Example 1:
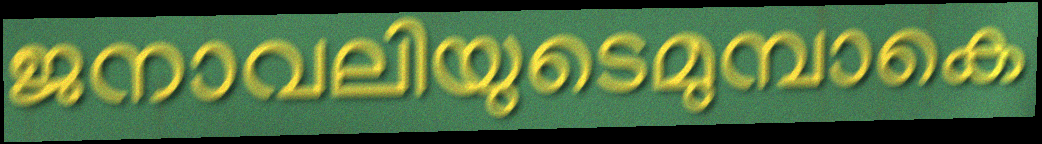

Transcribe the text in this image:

ജനാവലിയുടെമുമ്പാകെ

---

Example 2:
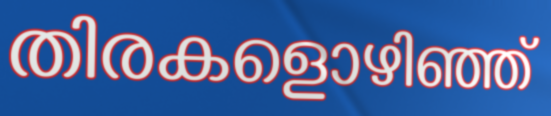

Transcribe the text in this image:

തിരകളൊഴിഞ്ഞ്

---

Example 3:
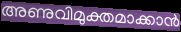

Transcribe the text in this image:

അണുവിമുക്തമാക്കാൻ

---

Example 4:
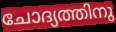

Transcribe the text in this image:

ചോദ്യത്തിനു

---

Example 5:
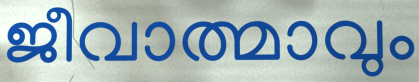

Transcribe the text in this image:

ജീവാത്മാവും